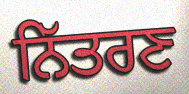
ਨਿੱਤਰਣ